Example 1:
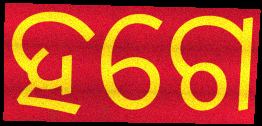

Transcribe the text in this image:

ହଗେ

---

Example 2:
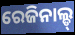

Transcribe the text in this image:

ରେଜିନାଲ୍ଡ୍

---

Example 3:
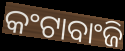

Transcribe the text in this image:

କଂଟାବାଂଜି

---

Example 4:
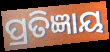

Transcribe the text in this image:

ପ୍ରତିଜ୍ଞାୟ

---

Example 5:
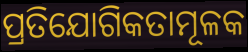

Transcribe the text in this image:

ପ୍ରତିଯୋଗିକତାମୂଳକ